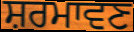
ਸ਼ਰਮਾਵਣ